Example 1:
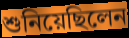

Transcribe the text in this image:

শুনিয়েছিলেন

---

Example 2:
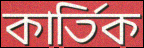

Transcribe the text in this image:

কার্তিক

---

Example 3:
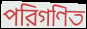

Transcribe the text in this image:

পরিগণিত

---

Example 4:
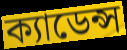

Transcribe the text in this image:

ক্যাডেন্স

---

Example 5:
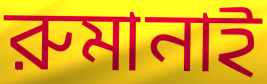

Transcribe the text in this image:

রুমানাই